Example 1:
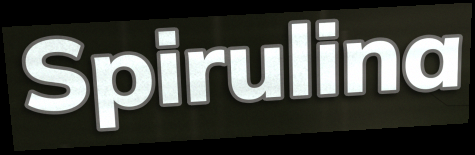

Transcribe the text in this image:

Spirulina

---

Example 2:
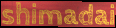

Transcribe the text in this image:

shimadai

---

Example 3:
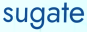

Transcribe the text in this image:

sugate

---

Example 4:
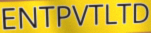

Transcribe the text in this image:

ENTPVTLTD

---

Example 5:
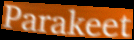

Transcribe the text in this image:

Parakeet